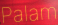
Palam